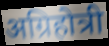
अग्रिहोत्री